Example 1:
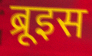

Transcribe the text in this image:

ब्रूइस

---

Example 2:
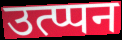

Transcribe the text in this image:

उत्प्पन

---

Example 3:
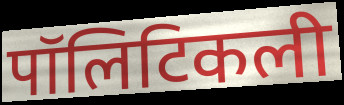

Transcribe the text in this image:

पॉलिटिकली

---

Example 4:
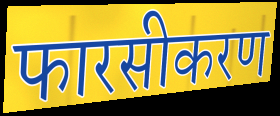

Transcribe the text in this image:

फारसीकरण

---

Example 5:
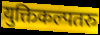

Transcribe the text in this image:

युक्तिकल्पतरु